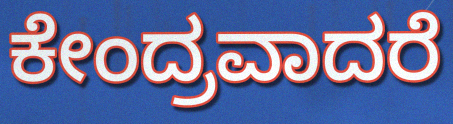
ಕೇಂದ್ರವಾದರೆ